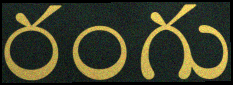
రంగు